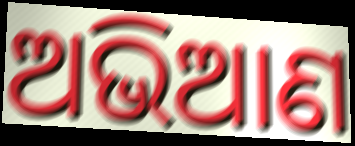
ଅଭିଆଣ